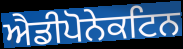
ਐਡੀਪੋਨੇਕਟਿਨ